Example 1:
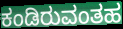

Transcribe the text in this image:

ಕಂಡಿರುವಂತಹ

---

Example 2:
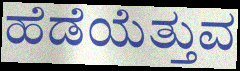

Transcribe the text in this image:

ಹೆಡೆಯೆತ್ತುವ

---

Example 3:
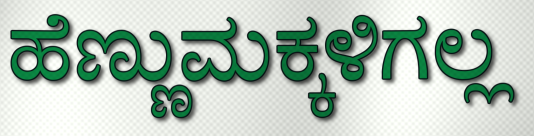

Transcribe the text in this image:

ಹೆಣ್ಣುಮಕ್ಕಳಿಗಲ್ಲ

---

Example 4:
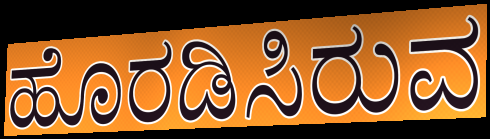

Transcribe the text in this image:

ಹೊರಡಿಸಿರುವ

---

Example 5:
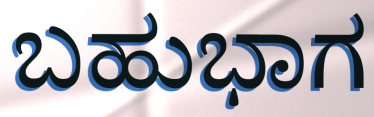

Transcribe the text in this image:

ಬಹುಭಾಗ